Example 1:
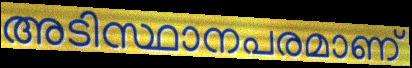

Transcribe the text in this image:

അടിസ്ഥാനപരമാണ്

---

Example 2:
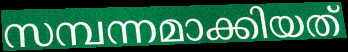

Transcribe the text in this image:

സമ്പന്നമാക്കിയത്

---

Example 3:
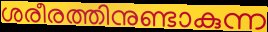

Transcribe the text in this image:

ശരീരത്തിനുണ്ടാകുന്ന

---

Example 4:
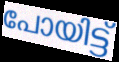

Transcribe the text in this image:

പോയിട്ട്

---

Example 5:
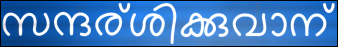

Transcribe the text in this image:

സന്ദര്ശിക്കുവാന്